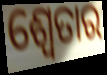
ଶ୍ଵେତାର